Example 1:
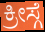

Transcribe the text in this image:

ಕ್ರೀಸ್ಗೆ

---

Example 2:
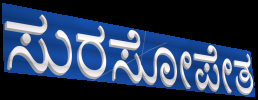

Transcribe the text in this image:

ಸುರಸೋಪೇತ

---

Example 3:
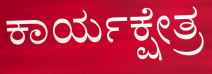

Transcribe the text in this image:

ಕಾರ್ಯಕ್ಷೇತ್ರ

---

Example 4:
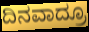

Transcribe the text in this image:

ದಿನವಾದ್ರೂ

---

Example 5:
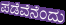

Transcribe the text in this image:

ಪಡೆವೆನೆಂದು